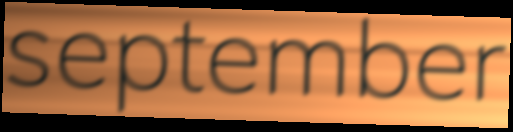
september